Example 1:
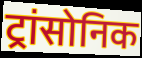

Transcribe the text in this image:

ट्रांसोनिक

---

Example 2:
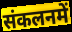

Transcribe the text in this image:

संकलनमें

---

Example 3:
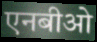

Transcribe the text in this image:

एनबीओ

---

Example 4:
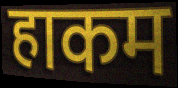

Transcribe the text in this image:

हाकम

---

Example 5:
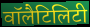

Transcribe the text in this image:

वॉलैटिलिटी